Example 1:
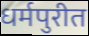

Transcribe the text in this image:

धर्मपुरीत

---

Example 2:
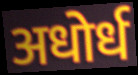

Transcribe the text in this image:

अधोर्ध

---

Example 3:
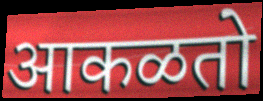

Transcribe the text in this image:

आकळतो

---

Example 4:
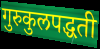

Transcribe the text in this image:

गुरुकुलपद्धती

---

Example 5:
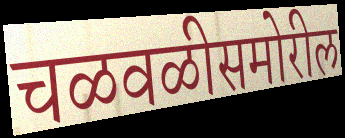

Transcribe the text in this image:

चळवळीसमोरील